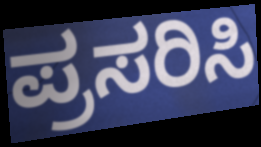
ಪ್ರಸರಿಸಿ